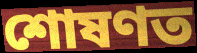
শোষণত